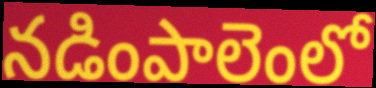
నడింపాలెంలో